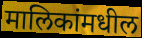
मालिकांमधील